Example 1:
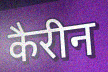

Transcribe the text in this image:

कैरीन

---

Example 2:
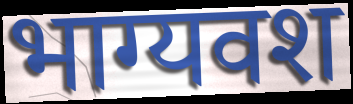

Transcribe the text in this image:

भाग्यवश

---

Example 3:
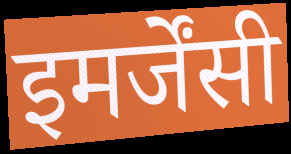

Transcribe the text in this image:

इमर्जेंसी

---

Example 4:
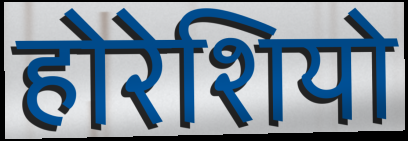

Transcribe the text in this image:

होरेशियो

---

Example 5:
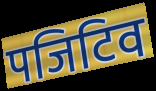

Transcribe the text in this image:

पजिटिव